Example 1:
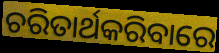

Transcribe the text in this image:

ଚରିତାର୍ଥକରିବାରେ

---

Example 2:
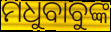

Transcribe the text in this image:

ମଧୁବାବୁଙ୍କ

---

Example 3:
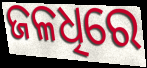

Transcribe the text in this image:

ଜଳଧିରେ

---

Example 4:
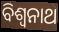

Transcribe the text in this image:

ବିଶ୍ଵନାଥ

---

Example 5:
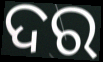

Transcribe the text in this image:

ଦର